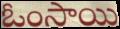
ఓంసాయి